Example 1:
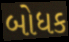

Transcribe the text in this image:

બોધક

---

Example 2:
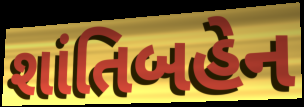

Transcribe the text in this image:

શાંતિબહેન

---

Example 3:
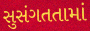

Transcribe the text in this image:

સુસંગતતામાં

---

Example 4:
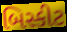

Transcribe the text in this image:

બિસ્કીટ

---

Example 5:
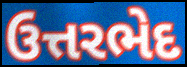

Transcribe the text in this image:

ઉત્તરભેદ